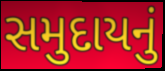
સમુદાયનું